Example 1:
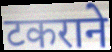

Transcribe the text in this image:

टकराने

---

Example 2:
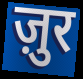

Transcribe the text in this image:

ज़ुर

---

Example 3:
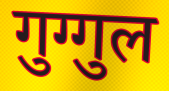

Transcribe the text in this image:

गुग्गुल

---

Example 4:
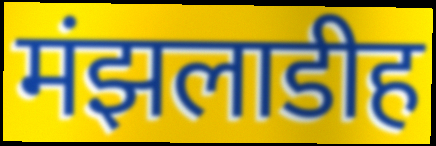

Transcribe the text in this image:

मंझलाडीह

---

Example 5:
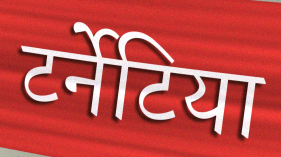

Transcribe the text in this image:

टर्नेटिया